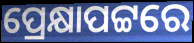
ପ୍ରେକ୍ଷାପଟ୍ଟରେ